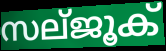
സല്ജൂക്